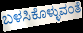
ಬಳಸಿಕೊಳ್ಳುವಂತೆ